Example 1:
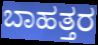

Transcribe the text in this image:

ಬಾಹತ್ತರ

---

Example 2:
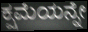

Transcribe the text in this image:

ಕ್ಷಮೆಯನ್ನೇ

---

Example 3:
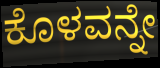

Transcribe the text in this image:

ಕೊಳವನ್ನೇ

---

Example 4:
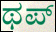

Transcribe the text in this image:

ಥಪ್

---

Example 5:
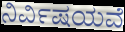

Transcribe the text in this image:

ನಿರ್ವಿಷಯವೆ